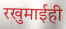
रखुमाईही